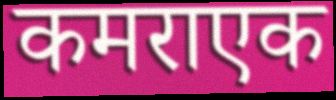
कमराएक